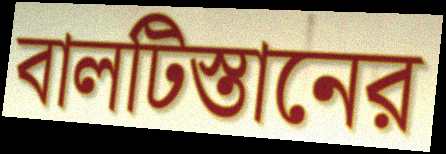
বালটিস্তানের